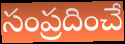
సంప్రదించే